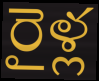
రైళ్ల